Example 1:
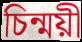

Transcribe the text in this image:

চিন্ময়ী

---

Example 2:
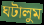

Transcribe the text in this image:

ঘটালুম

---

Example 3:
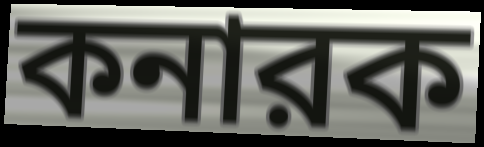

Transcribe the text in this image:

কনারক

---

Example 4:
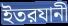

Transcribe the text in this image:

ইতরযানী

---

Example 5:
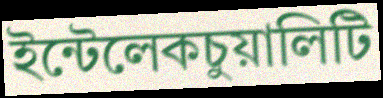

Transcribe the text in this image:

ইন্টেলেকচুয়ালিটি